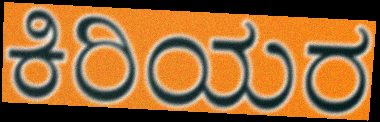
ಕಿರಿಯರ